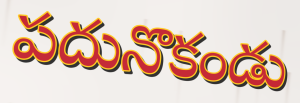
పదునొకండు